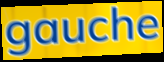
gauche